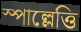
স্পাল্লেত্তি